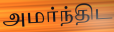
அமர்ந்திட